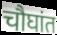
चौघांत